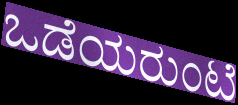
ಒಡೆಯರುಂಟೆ